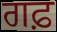
ਗਫ਼